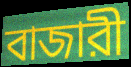
বাজারী